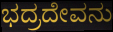
ಭದ್ರದೇವನು